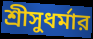
শ্রীসুধর্মার